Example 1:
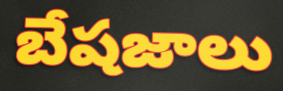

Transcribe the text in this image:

బేషజాలు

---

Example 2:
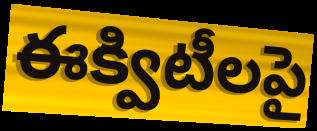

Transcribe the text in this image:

ఈక్విటీలపై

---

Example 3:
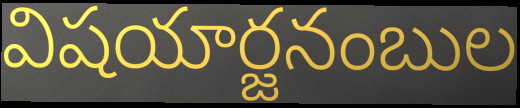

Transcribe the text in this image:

విషయార్జనంబుల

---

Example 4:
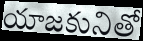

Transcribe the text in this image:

యాజకునితో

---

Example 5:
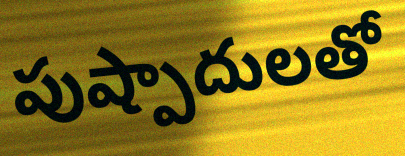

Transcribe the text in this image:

పుష్పాదులతో